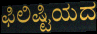
ಫಿಲಿಷ್ಟಿಯದ